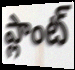
ప్లాంట్